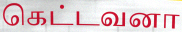
கெட்டவனா